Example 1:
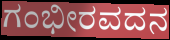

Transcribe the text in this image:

ಗಂಭೀರವದನ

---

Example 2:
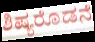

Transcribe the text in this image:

ಶಿಷ್ಯರೊಡನೆ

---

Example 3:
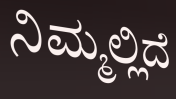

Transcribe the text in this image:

ನಿಮ್ಮಲ್ಲಿದೆ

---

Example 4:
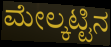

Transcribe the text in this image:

ಮೇಲ್ಕಟ್ಟಿನ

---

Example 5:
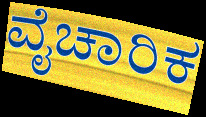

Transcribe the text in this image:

ವೈಚಾರಿಕ